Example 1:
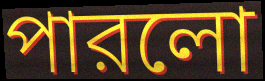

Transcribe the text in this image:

পারলো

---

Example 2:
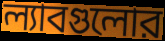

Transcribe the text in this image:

ল্যাবগুলোর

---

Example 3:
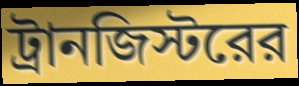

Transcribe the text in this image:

ট্রানজিস্টরের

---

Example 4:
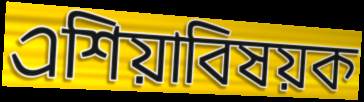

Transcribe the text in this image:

এশিয়াবিষয়ক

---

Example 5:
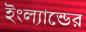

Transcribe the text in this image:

ইংল্যান্ডের